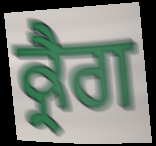
ਕ੍ਰੈਗ